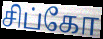
சிப்கோ